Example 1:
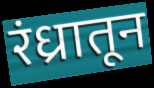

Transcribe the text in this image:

रंध्रातून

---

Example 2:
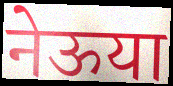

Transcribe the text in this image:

नेऊया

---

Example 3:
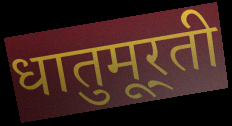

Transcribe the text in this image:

धातुमूर्ती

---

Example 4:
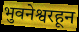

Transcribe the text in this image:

भुवनेश्वरहून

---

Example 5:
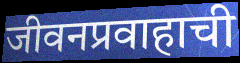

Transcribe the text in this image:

जीवनप्रवाहाची